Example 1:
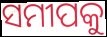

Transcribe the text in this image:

ସମୀପକୁ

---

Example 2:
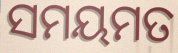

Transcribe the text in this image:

ସମୟମତ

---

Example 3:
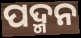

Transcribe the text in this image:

ପଦ୍ମନ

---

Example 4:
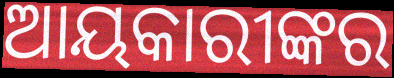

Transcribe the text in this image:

ଆୟକାରୀଙ୍କର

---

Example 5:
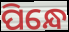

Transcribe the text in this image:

ପିନ୍ଧେ